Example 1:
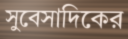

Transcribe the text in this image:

সুবেসাদিকের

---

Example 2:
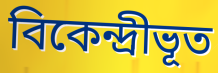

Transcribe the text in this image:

বিকেন্দ্রীভূত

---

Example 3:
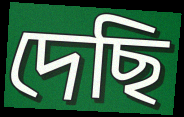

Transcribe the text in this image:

দেছি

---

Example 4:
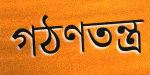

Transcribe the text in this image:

গঠণতন্ত্র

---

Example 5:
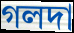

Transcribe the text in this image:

গলদা